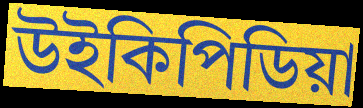
উইকিপিডিয়া